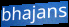
bhajans